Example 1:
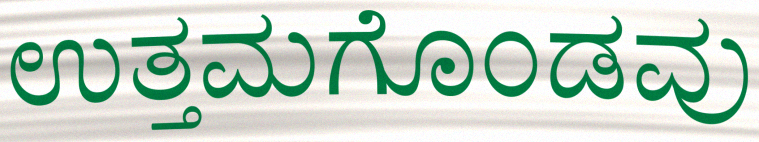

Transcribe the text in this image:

ಉತ್ತಮಗೊಂಡವು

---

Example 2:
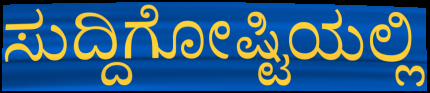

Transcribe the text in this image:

ಸುದ್ದಿಗೋಷ್ಟಿಯಲ್ಲಿ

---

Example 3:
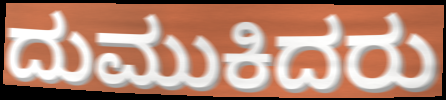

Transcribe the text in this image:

ದುಮುಕಿದರು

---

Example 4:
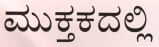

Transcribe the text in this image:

ಮುಕ್ತಕದಲ್ಲಿ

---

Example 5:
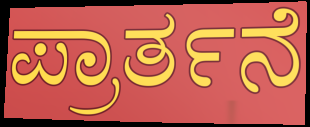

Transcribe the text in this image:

ಪ್ರಾರ್ತನೆ